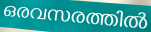
ഒരവസരത്തിൽ